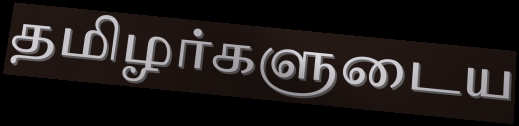
தமிழர்களுடைய